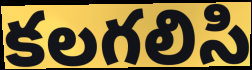
కలగలిసి